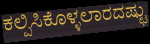
ಕಲ್ಪಿಸಿಕೊಳ್ಳಲಾರದಷ್ಟು